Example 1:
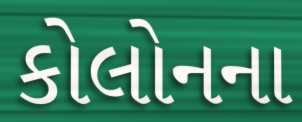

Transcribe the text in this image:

કોલોનના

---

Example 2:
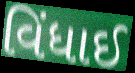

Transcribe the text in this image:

વિંધાઈ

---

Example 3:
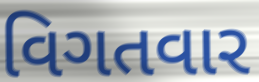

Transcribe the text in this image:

વિગતવાર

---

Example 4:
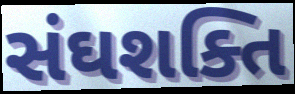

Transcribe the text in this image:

સંઘશક્તિ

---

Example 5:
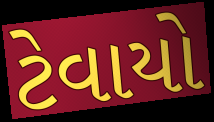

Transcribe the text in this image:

ટેવાયો